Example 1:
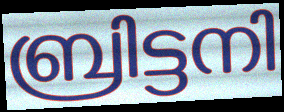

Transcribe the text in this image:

ബ്രിട്ടനി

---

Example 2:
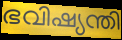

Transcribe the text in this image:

ഭവിഷ്യന്തി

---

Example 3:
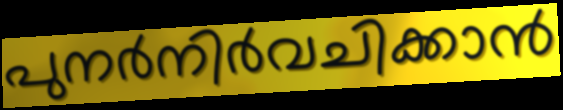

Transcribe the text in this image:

പുനർനിർവചിക്കാൻ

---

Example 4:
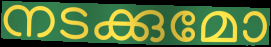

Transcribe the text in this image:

നടക്കുമോ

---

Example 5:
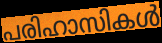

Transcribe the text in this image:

പരിഹാസികൾ